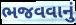
ભજવવાનું